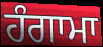
ਹੰਗਾਮਾ